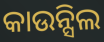
କାଉନ୍ସିଲ